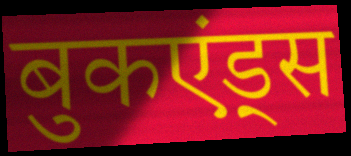
बुकएंड्स